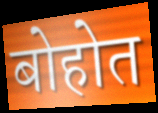
बोहोत